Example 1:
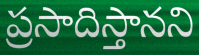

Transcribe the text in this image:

ప్రసాదిస్తానని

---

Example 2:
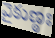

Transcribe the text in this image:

వైకుణ్ఠః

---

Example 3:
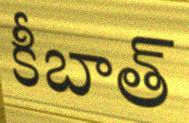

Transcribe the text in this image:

కీబాత్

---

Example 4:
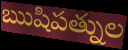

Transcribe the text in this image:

ఋషిపత్నుల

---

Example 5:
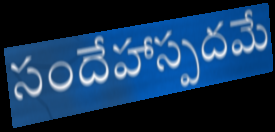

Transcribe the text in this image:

సందేహాస్పదమే